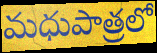
మధుపాత్రలో